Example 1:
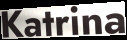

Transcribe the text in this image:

Katrina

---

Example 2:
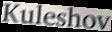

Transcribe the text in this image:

Kuleshov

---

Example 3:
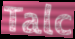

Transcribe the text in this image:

Talc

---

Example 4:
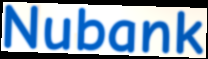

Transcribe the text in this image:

Nubank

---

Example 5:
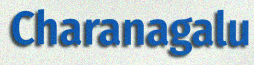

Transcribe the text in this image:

Charanagalu